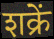
शक्रें